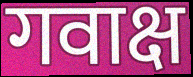
गवाक्ष